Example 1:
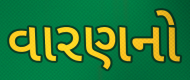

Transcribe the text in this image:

વારણનો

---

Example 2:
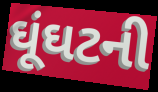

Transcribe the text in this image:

ઘૂંઘટની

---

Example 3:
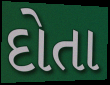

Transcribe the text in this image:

દોતા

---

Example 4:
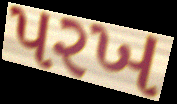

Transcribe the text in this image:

પરખ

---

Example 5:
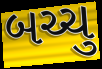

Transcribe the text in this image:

બચ્ચુ